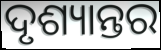
ଦୃଶ୍ୟାନ୍ତର